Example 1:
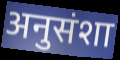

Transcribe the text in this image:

अनुसंशा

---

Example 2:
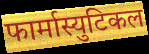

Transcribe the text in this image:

फार्मास्युटिकल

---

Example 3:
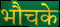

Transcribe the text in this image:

भौचके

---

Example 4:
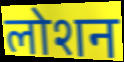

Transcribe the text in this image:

लोशन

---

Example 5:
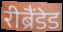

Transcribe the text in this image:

रीब्रैंडेड